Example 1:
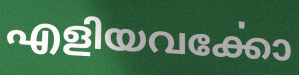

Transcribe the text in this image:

എളിയവൎക്കോ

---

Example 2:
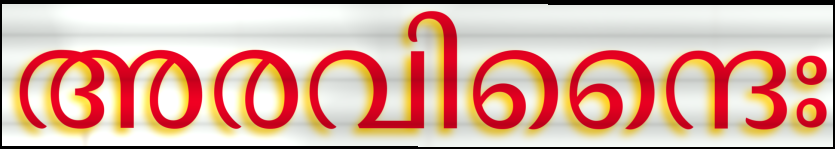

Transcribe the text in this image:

അരവിന്ദൈഃ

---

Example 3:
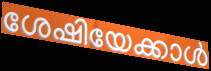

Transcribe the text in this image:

ശേഷിയേക്കാൾ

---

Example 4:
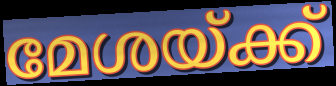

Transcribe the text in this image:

മേശയ്ക്ക്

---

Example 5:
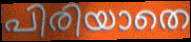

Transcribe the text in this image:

പിരിയാതെ